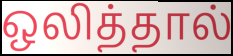
ஒலித்தால்